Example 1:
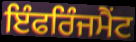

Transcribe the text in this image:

ਇੰਫਰਿੰਜਮੈਂਟ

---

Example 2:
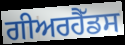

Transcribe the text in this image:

ਗੀਅਰਹੈੱਡਸ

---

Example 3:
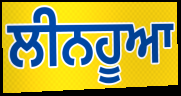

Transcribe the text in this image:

ਲੀਨਹੂਆ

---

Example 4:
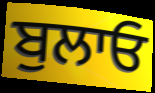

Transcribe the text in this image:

ਬੁਲਾਓ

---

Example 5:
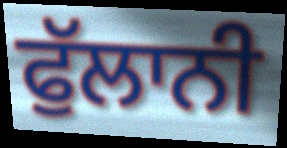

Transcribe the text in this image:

ਫੁੱਲਾਨੀ